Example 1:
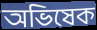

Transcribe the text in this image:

অভিষেক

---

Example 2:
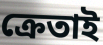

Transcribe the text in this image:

ক্ৰেতাই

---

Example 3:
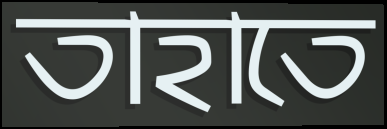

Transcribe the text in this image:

তাহাতে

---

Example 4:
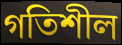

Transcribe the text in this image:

গতিশীল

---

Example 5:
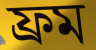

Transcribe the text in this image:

ফ্ৰম